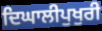
ਦਿਘਾਲੀਪੁਖੁਰੀ